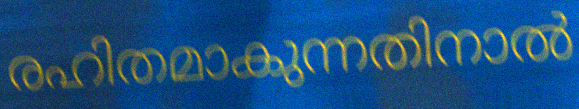
രഹിതമാകുന്നതിനാൽ